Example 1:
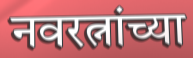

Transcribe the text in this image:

नवरत्नांच्या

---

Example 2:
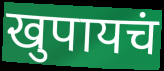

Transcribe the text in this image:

खुपायचं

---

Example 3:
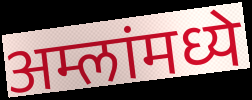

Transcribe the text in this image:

अम्लांमध्ये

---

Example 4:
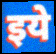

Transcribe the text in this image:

इये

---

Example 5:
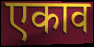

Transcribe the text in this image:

एकाव